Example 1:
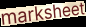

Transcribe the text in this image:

marksheet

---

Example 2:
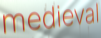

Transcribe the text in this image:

medieval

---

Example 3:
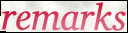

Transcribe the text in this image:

remarks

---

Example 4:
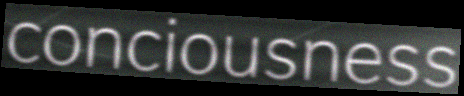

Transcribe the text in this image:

conciousness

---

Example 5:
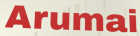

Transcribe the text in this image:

Arumai